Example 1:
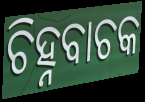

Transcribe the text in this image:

ଚିହ୍ନବାଚକ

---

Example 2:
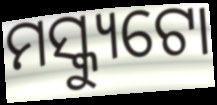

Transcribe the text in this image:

ମସ୍କ୍ୟୁଟୋ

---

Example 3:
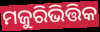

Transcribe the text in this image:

ମଜୁରିଭିତ୍ତିକ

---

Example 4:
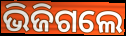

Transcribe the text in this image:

ଭିଜିଗଲେ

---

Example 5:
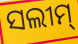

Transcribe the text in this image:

ସଲୀମ୍